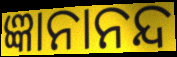
ଜ୍ଞାନାନନ୍ଦ